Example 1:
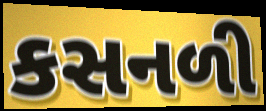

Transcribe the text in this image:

કસનળી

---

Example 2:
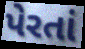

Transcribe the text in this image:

પેરતાં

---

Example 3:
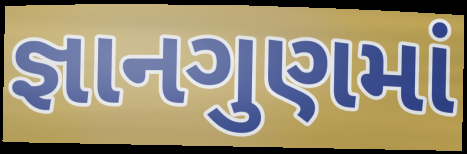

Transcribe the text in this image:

જ્ઞાનગુણમાં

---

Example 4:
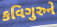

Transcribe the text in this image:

કવિગુરુને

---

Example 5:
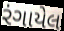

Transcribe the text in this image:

રંગાયેલ